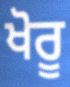
ਖੋਰੂ